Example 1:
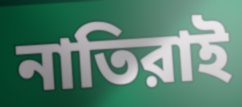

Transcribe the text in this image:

নাতিরাই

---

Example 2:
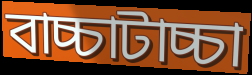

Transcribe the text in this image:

বাচ্চাটাচ্চা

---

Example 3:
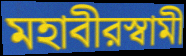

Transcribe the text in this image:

মহাবীরস্বামী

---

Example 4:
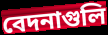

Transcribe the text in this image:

বেদনাগুলি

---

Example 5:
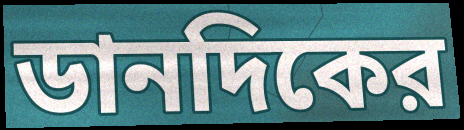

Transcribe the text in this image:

ডানদিকের